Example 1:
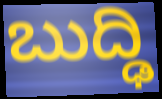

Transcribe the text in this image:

ಬುದ್ಢಿ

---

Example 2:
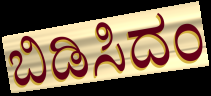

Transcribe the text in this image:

ಬಿಡಿಸಿದಂ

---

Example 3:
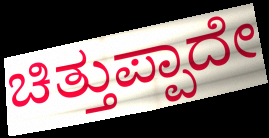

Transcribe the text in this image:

ಚಿತ್ತುಪ್ಪಾದೇ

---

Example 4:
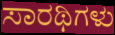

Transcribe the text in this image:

ಸಾರಥಿಗಳು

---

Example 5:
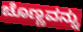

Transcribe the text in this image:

ಚೊಣ್ಣವನ್ನು